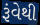
રૂંવેથી